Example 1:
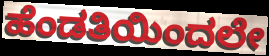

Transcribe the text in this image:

ಹೆಂಡತಿಯಿಂದಲೇ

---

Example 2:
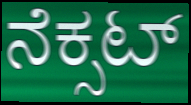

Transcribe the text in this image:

ನೆಕ್ಸಟ್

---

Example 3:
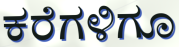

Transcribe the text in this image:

ಕರೆಗಳಿಗೂ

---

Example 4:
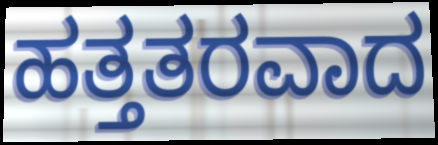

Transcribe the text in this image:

ಹತ್ತತರವಾದ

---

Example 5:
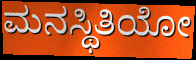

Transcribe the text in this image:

ಮನಸ್ಥಿತಿಯೋ